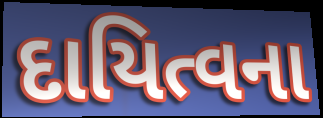
દાયિત્વના